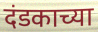
दंडकाच्या